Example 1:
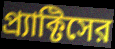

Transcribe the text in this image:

প্র্যাক্টিসের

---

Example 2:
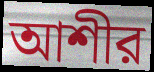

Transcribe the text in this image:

আশীর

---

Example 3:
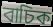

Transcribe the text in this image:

বাচিক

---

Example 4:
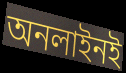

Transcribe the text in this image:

অনলাইনই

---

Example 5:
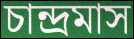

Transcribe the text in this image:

চান্দ্রমাস